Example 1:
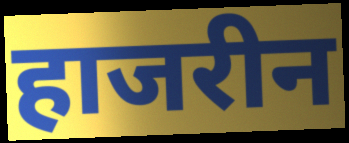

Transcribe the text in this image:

हाजरीन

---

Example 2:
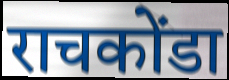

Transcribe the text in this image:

राचकोंडा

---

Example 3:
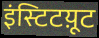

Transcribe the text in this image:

इंस्टिटय़ूट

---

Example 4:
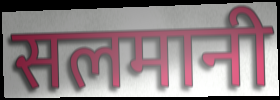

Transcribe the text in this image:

सलमानी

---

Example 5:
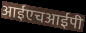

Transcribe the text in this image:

आईएचआईपी